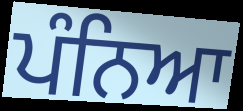
ਪੰਨਿਆ